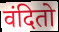
वंदितो